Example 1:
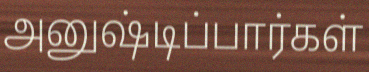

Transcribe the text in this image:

அனுஷ்டிப்பார்கள்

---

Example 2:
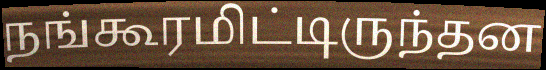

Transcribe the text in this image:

நங்கூரமிட்டிருந்தன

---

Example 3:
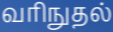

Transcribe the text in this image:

வரிநுதல்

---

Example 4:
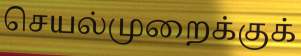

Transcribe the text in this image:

செயல்முறைக்குக்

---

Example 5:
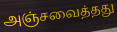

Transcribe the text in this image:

அஞ்சவைத்தது